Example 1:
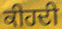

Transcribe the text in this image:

ਕੀਹਦੀ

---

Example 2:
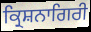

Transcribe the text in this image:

ਕ੍ਰਿਸ਼ਨਾਗਿਰੀ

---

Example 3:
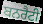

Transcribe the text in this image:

ਬਨਰੈਟੀ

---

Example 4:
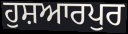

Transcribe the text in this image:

ਹੁਸ਼ਆਰਪੁਰ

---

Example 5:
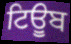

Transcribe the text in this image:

ਟਿਊੂਬ